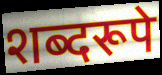
शब्दरूपे